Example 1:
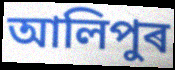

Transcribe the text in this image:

আলিপুৰ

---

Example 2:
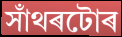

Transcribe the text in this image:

সাঁথৰটোৰ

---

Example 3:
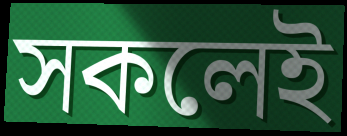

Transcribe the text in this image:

সকলেই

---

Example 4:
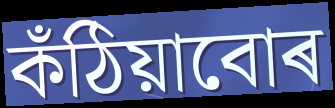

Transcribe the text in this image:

কঁঠিয়াবোৰ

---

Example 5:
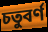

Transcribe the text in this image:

চতুবৰ্ণ